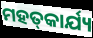
ମହତ୍‌କାର୍ଯ୍ୟ